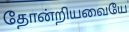
தோன்றியவையே